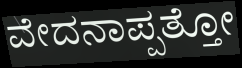
ವೇದನಾಪ್ಪತ್ತೋ